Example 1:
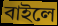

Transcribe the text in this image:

বাইলে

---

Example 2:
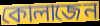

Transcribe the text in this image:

কোলাজেন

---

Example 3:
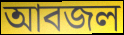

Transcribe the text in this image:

আবজল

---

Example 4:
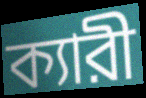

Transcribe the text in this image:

ক্যারী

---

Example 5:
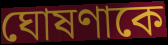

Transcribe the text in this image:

ঘোষণাকে